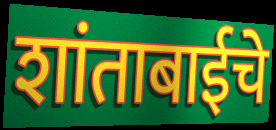
शांताबाईचे